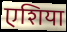
एशिया